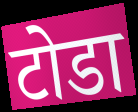
टोडा